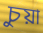
চুয়া